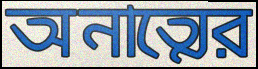
অনাত্মের